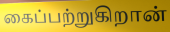
கைப்பற்றுகிறான்